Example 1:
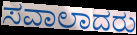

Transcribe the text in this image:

ಸವಾಲಾದರು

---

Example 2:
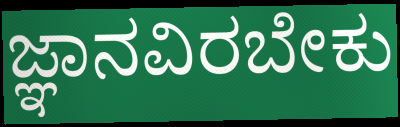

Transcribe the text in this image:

ಜ್ಞಾನವಿರಬೇಕು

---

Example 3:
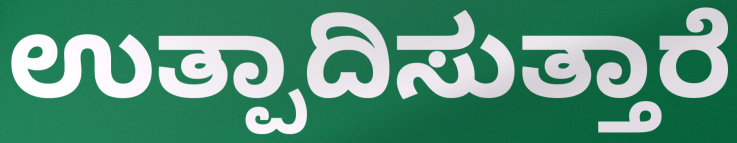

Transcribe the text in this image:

ಉತ್ಪಾದಿಸುತ್ತಾರೆ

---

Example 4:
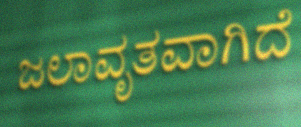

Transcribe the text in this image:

ಜಲಾವೃತವಾಗಿದೆ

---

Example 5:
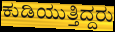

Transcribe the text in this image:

ಕುಡಿಯುತ್ತಿದ್ದರು